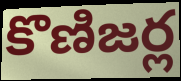
కొణిజర్ల